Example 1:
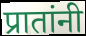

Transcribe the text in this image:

प्रातांनी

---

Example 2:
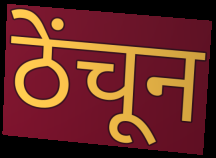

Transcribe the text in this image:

ठेंचून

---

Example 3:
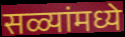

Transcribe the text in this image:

सळ्यांमध्ये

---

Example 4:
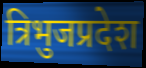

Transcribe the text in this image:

त्रिभुजप्रदेश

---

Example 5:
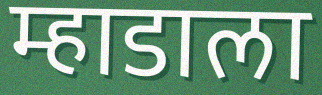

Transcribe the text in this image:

म्हाडाला